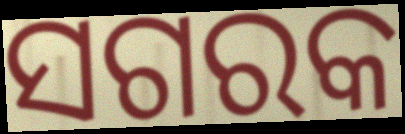
ସଗରକ